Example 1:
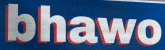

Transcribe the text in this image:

bhawo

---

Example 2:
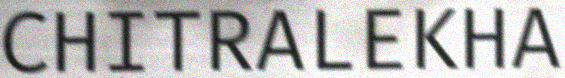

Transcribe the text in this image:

CHITRALEKHA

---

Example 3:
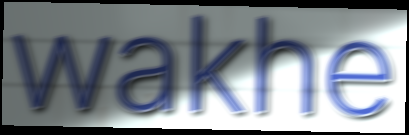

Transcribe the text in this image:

wakhe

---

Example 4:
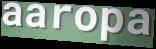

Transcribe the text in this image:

aaropa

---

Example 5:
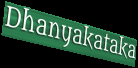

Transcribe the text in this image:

Dhanyakataka